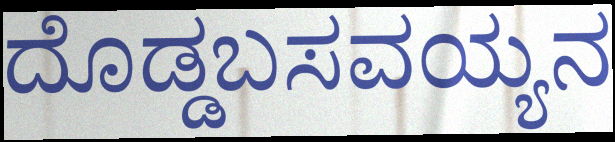
ದೊಡ್ಡಬಸವಯ್ಯನ